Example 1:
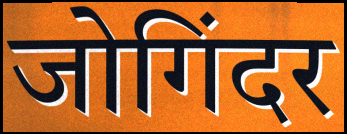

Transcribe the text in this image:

जोगिंदर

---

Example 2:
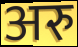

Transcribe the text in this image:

अरु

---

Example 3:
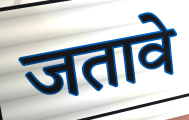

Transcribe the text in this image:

जतावे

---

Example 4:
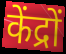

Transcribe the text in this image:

केंद्रों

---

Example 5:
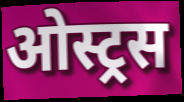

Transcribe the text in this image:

ओस्ट्रस